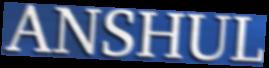
ANSHUL